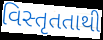
વિસ્તૃતતાથી